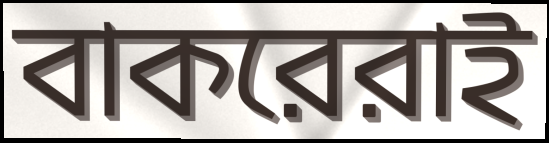
বাকরেরাই